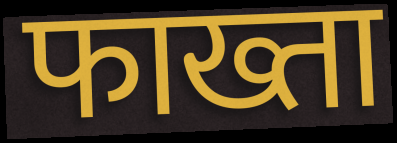
फाख्ता